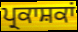
ਪ੍ਰਕਾਸ਼ਕਾਂ